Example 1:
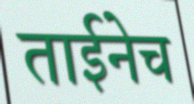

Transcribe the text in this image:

ताईनेच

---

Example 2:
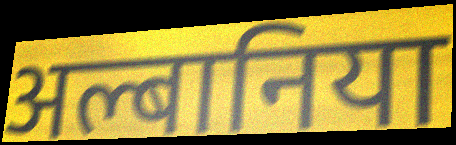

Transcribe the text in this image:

अल्बानिया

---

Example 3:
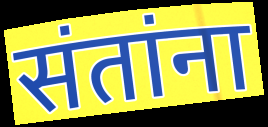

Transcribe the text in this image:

संतांना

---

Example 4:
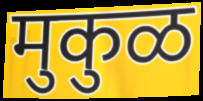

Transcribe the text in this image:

मुकुळ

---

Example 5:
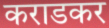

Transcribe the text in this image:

कराडकर